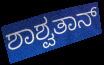
ಶಾಶ್ವತಾನ್